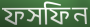
ফসফিন